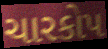
ચારકોપ